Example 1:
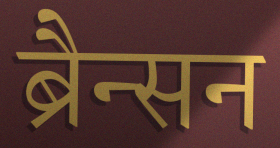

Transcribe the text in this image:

ब्रैन्सन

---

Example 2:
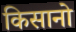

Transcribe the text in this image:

किसानो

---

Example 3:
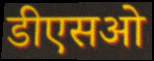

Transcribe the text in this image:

डीएसओ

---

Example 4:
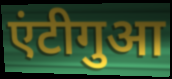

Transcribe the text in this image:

एंटीगुआ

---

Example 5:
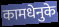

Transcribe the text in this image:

कामधेनुके